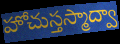
హోచుస్తస్మాద్వా